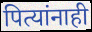
पित्यांनाही